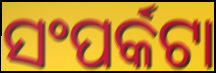
ସଂପର୍କଟା